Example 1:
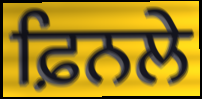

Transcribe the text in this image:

ਫ਼ਿਨਲੇ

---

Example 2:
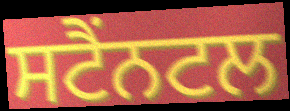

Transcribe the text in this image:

ਸਟੈਂਨਟਲ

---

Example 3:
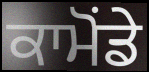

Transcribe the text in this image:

ਕਾਮੋਂਡੇ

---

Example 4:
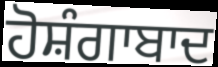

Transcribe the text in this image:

ਹੋਸ਼ੰਗਾਬਾਦ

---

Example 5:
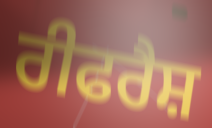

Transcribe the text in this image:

ਰੀਫਰੈਸ਼